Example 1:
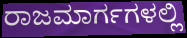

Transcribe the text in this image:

ರಾಜಮಾರ್ಗಗಳಲ್ಲಿ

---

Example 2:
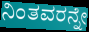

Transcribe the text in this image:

ನಿಂತವರನ್ನೇ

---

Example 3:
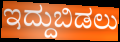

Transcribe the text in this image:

ಇದ್ದುಬಿಡಲು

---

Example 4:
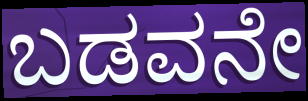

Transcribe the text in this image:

ಬಡವನೇ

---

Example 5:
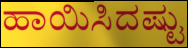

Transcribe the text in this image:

ಹಾಯಿಸಿದಷ್ಟು